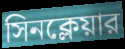
সিনক্লেয়ার